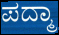
ಪದ್ಮಾ